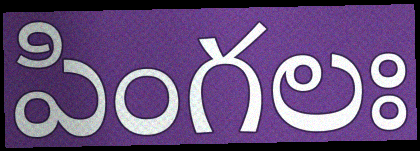
పింగలః